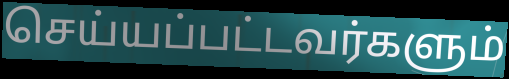
செய்யப்பட்டவர்களும்